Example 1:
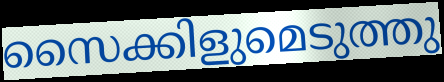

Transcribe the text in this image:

സൈക്കിളുമെടുത്തു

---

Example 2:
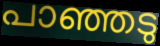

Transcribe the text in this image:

പാഞ്ഞടു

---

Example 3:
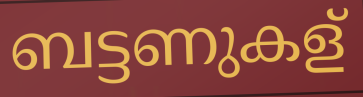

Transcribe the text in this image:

ബട്ടണുകള്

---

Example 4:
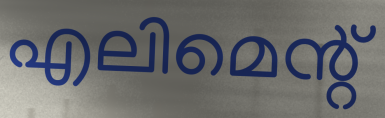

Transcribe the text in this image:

എലിമെന്റ്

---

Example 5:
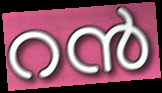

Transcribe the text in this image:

റൻ